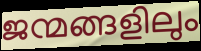
ജന്മങ്ങളിലും